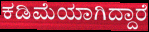
ಕಡಿಮೆಯಾಗಿದ್ದಾರೆ